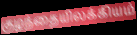
குழந்தையிலக்கியம்